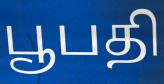
பூபதி